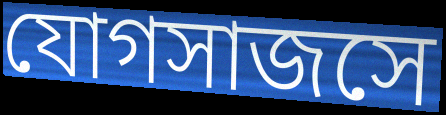
যোগসাজসে